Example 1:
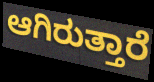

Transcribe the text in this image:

ಆಗಿರುತ್ತಾರೆ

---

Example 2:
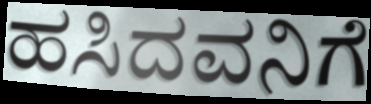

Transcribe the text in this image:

ಹಸಿದವನಿಗೆ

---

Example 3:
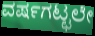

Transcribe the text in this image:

ವರ್ಷಗಟ್ಟಲೇ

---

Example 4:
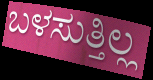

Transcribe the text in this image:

ಬಳಸುತ್ತಿಲ್ಲ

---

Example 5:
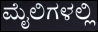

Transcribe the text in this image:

ಮೈಲಿಗಳಲ್ಲಿ